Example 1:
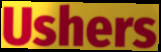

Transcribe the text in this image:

Ushers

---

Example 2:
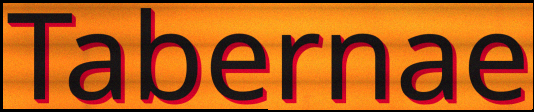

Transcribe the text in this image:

Tabernae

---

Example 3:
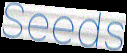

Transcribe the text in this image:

Seeds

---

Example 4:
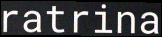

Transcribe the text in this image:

ratrina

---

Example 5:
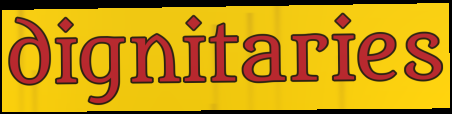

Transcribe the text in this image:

dignitaries